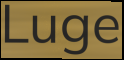
Luge